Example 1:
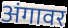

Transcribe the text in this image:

अंगावर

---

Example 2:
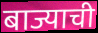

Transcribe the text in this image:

बाज्याची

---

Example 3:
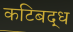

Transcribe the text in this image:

कटिबद्ध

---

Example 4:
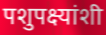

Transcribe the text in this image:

पशुपक्ष्यांशी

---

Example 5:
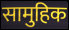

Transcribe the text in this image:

सामुहिक